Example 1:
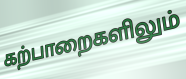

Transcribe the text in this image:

கற்பாறைகளிலும்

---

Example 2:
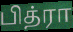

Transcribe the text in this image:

பித்ரா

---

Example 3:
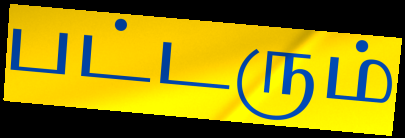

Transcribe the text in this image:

பட்டரும்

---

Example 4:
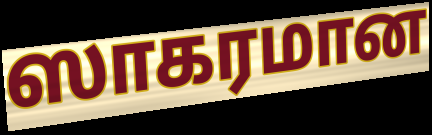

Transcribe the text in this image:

ஸாகரமான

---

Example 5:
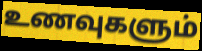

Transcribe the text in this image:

உணவுகளும்